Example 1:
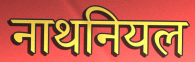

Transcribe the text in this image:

नाथनियल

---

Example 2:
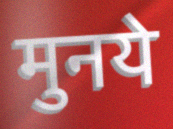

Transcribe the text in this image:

मुनये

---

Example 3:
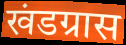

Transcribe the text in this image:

खंडग्रास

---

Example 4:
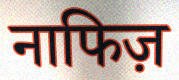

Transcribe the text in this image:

नाफिज़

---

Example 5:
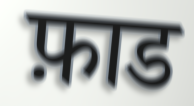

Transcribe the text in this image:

फ़ाड